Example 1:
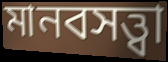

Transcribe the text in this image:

মানবসত্ত্বা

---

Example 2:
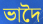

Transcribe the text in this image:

ভাদৈ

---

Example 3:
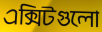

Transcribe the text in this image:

এক্সিটগুলো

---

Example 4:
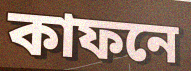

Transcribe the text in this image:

কাফনে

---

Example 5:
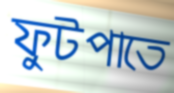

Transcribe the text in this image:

ফুটপাতে